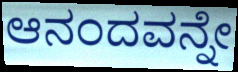
ಆನಂದವನ್ನೇ